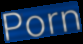
Porn